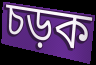
চড়ক